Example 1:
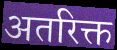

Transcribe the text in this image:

अतरिक्त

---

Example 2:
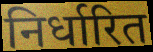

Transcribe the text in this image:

निर्धारित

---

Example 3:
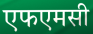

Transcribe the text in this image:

एफएमसी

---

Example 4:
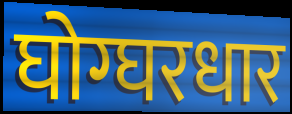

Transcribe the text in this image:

घोग्घरधार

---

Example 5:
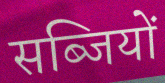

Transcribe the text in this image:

सब्जियों